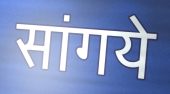
सांगये